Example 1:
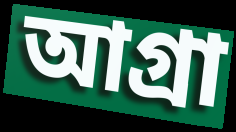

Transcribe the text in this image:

আগ্রা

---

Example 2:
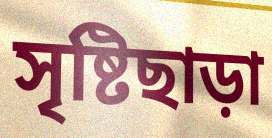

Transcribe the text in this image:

সৃষ্টিছাড়া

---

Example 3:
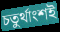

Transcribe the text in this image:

চতুর্থাংশই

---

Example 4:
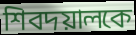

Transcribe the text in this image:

শিবদয়ালকে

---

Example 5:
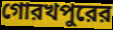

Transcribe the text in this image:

গোরখপুরের